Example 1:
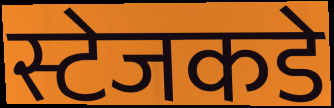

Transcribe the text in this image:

स्टेजकडे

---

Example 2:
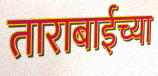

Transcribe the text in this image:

ताराबाईच्या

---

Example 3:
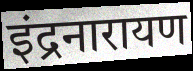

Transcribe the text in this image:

इंद्रनारायण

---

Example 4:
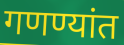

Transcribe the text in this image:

गणण्यांत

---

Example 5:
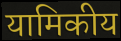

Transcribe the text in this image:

यामिकीय